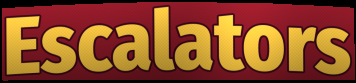
Escalators